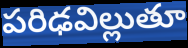
పరిఢవిల్లుతూ